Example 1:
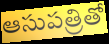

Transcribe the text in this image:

ఆసుపత్రితో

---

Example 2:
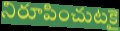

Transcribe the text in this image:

నిరూపించుటకై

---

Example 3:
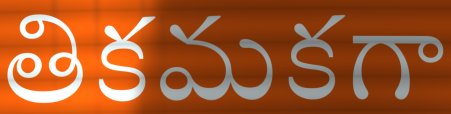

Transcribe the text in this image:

తికమకగా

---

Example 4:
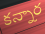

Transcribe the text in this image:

కన్నార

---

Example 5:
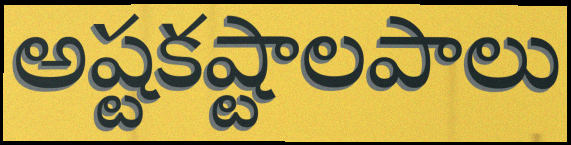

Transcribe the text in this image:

అష్టకష్టాలపాలు